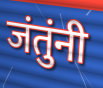
जंतुंनी